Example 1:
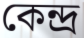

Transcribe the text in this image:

কেন্দ্র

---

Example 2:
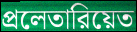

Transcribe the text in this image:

প্রলেতারিয়েত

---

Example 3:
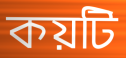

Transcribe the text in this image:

কয়টি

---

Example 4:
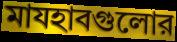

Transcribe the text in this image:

মাযহাবগুলোর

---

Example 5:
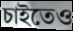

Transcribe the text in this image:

চাইতেও